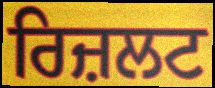
ਰਿਜ਼ਲਟ